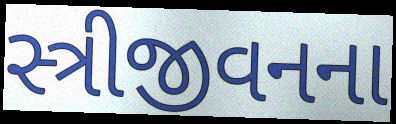
સ્ત્રીજીવનના